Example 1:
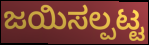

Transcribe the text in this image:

ಜಯಿಸಲ್ಪಟ್ಟ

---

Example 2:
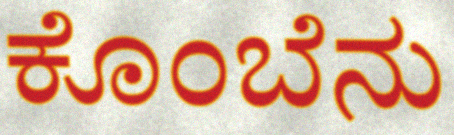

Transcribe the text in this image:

ಕೊಂಬೆನು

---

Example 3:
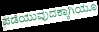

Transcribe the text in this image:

ಪಡೆಯುವುದಕ್ಕಾಗಿಯೂ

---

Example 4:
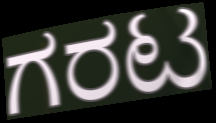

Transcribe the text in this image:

ಗರಟ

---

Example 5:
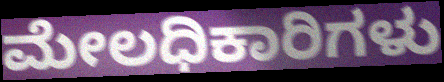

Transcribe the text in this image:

ಮೇಲಧಿಕಾರಿಗಳು